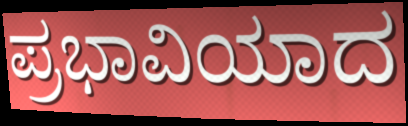
ಪ್ರಭಾವಿಯಾದ